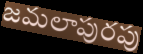
జమలాపురపు